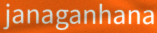
janaganhana